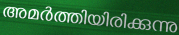
അമർത്തിയിരിക്കുന്നു